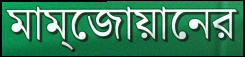
মাম্জোয়ানের